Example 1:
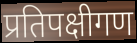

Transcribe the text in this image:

प्रतिपक्षीगण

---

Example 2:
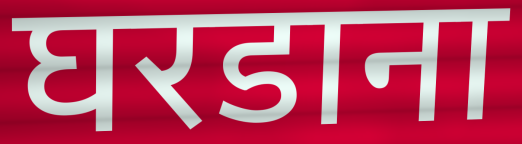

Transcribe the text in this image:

घरडाना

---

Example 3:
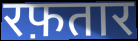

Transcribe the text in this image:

रफ़तार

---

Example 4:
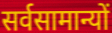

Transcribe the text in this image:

सर्वसामान्यों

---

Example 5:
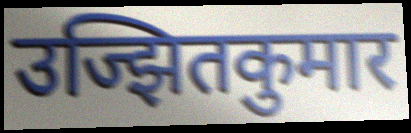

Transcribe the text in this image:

उज्झितकुमार